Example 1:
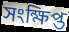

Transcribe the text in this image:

সংক্ষিপ্ত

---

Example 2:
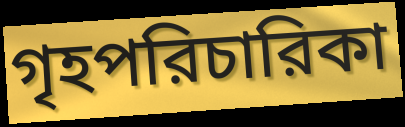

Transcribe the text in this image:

গৃহপরিচারিকা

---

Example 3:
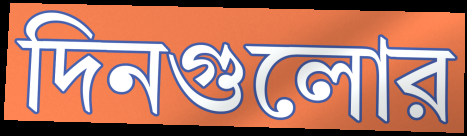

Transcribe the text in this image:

দিনগুলোর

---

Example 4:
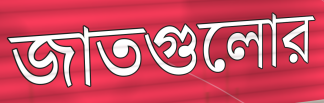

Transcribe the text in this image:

জাতগুলোর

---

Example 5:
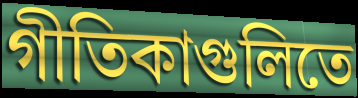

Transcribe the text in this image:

গীতিকাগুলিতে